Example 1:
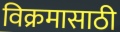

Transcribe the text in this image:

विक्रमासाठी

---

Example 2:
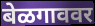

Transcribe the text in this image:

बेळगाववर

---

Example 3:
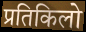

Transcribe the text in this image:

प्रतिकिलो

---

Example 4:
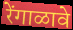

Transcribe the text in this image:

रेंगाळावे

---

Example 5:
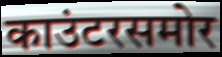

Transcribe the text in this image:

काउंटरसमोर